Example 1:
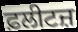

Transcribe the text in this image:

ਫ਼ਲੀਟਜ਼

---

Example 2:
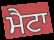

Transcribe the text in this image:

ਮੈਟਾ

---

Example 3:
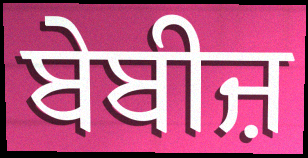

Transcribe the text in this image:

ਬੇਬੀਜ਼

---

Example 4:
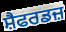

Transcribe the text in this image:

ਸ਼ੈਫਰਡਜ਼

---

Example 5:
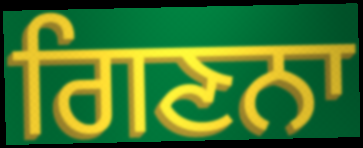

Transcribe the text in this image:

ਗਿਣਨਾ